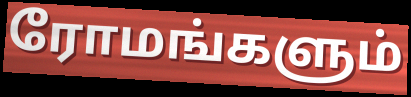
ரோமங்களும்